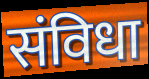
संविधा